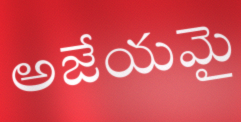
అజేయమై